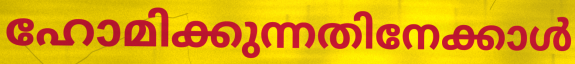
ഹോമിക്കുന്നതിനേക്കാൾ